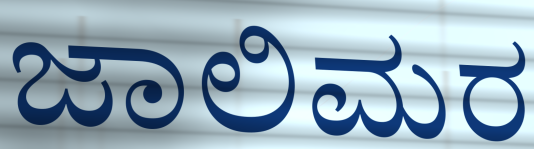
ಜಾಲಿಮರ